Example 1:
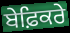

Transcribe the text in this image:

ਬੇਫ਼ਿਕਰੇ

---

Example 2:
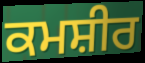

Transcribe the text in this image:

ਕਮਸ਼ੀਰ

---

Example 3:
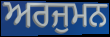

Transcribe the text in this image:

ਅਰਜੁਮਨ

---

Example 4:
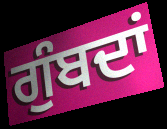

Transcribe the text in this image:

ਗੁੰਬਦਾਂ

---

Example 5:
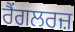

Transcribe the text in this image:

ਰੈਂਗਲਰਜ਼